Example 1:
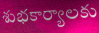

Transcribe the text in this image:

శుభకార్యాలకు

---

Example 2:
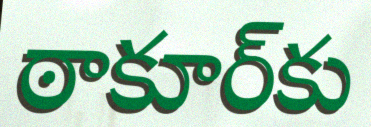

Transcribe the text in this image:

ఠాకూర్‌కు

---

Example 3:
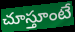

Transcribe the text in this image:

చూస్తూంటే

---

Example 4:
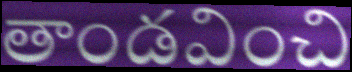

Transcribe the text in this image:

తాండవించి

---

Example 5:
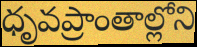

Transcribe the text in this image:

ధృవప్రాంతాల్లోని